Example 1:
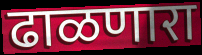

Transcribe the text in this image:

ढाळणारा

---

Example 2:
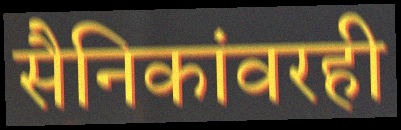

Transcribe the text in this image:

सैनिकांवरही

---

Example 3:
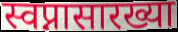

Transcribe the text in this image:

स्वप्नासारख्या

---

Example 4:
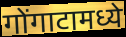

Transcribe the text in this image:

गोंगाटामध्ये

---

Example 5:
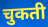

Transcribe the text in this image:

चुकती